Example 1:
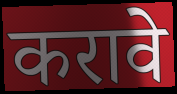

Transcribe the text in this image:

करावे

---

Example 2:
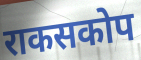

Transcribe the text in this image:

राकसकोप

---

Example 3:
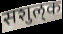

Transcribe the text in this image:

सशुल्क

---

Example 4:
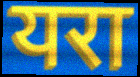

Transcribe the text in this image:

यरा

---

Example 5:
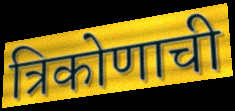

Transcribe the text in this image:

त्रिकोणाची